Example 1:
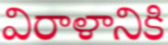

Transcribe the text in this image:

విరాళానికి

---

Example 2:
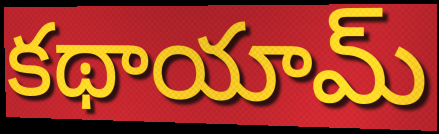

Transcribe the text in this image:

కథాయామ్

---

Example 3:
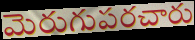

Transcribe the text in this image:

మెరుగుపరచారు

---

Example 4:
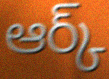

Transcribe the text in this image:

ఆర్క్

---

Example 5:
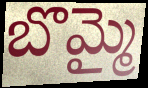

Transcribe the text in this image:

బొమ్మై